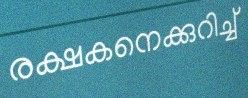
രക്ഷകനെക്കുറിച്ച്